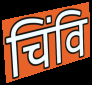
चिंवि